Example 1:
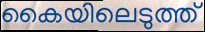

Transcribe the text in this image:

കൈയിലെടുത്ത്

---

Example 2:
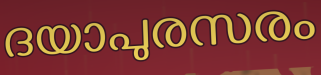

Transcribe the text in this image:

ദയാപുരസരം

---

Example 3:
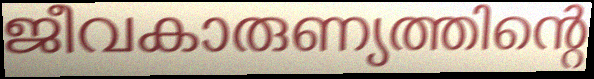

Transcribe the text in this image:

ജീവകാരുണ്യത്തിന്റെ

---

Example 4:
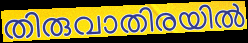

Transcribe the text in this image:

തിരുവാതിരയിൽ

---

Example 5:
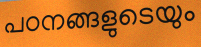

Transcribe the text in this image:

പഠനങ്ങളുടെയും